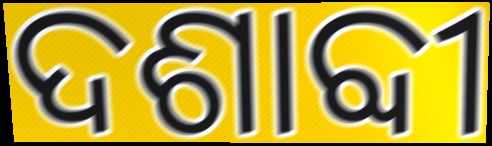
ଦଶାବ୍ଦୀ